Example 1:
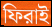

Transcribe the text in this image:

ফিরাই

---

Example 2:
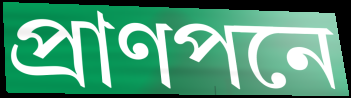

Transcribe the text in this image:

প্রাণপনে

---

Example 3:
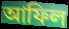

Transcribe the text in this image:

আফিল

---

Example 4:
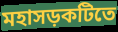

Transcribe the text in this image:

মহাসড়কটিতে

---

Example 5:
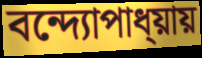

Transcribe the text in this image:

বন্দ্যোপাধ্য়ায়